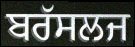
ਬਰੱਸਲਜ